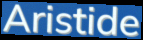
Aristide